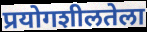
प्रयोगशीलतेला